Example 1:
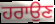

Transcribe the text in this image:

ਹਰਾਉਣ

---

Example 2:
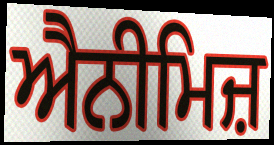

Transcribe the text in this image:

ਐਨੀਮਿਜ਼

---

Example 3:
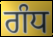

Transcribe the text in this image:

ਗੰਧ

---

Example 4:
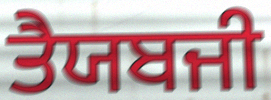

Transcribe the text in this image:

ਤੈਯਬਜੀ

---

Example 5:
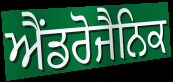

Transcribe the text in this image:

ਐਂਡਰੋਜੈਨਿਕ